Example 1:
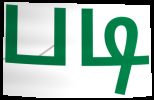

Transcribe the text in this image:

படி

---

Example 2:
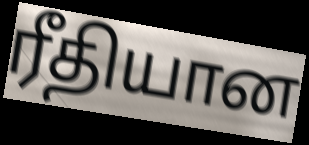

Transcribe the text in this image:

ரீதியான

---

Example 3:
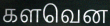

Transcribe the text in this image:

களவென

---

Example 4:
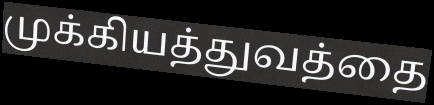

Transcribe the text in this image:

முக்கியத்துவத்தை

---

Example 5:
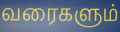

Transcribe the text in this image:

வரைகளும்